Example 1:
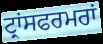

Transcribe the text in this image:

ਟ੍ਰਾਂਸਫਰਮਰਾਂ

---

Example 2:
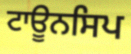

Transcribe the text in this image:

ਟਾਊਨਸਿਪ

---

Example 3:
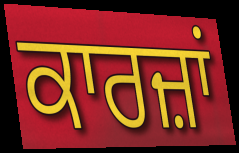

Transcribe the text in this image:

ਕਾਰਜ਼ਾਂ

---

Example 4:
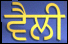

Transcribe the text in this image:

ਵੈਲੀ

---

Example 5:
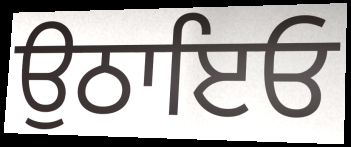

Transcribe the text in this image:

ਉਠਾਇਓ